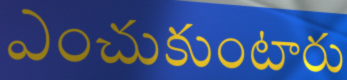
ఎంచుకుంటారు